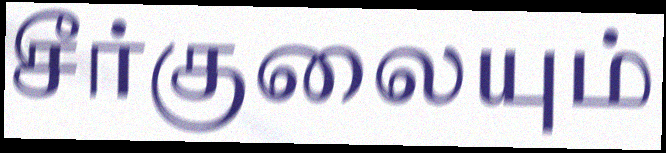
சீர்குலையும்